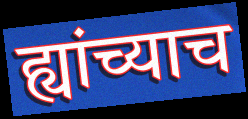
ह्यांच्याच